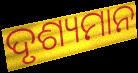
ଦୃଶ୍ୟମାନ